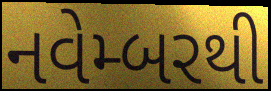
નવેમ્બરથી